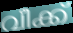
വീക്ക്